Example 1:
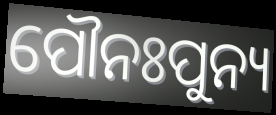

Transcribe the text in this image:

ପୌନଃପୁନ୍ୟ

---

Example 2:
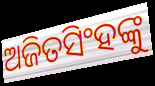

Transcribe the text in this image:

ଅଜିତସିଂହଙ୍କୁ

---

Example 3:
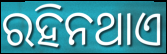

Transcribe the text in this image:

ରହିନଥାଏ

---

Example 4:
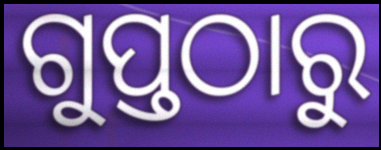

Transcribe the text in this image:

ଗୁପ୍ତଠାରୁ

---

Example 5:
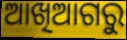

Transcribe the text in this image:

ଆଖିଆଗରୁ